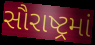
સૌરાષ્ટ્રમાં